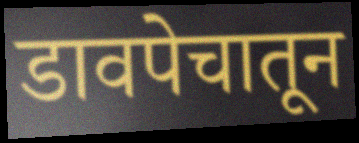
डावपेचातून